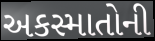
અકસ્માતોની